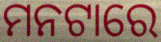
ମନଟାରେ